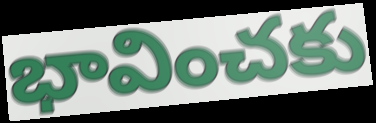
భావించకు